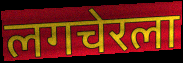
लगचेरला